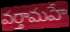
వర్తామహే